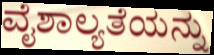
ವೈಶಾಲ್ಯತೆಯನ್ನು